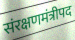
संरक्षणमंत्रीपद